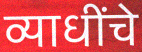
व्याधींचे